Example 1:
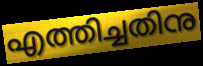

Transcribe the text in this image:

എത്തിച്ചതിനു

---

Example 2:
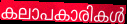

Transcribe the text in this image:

കലാപകാരികൾ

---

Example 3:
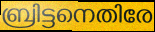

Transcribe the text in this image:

ബ്രിട്ടനെതിരേ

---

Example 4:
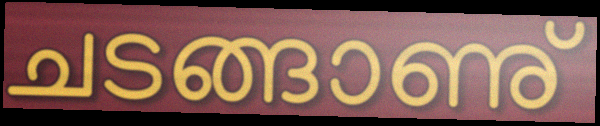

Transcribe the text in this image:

ചടങ്ങാണു്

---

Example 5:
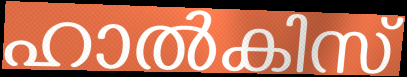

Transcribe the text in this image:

ഹാൽകിസ്